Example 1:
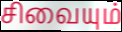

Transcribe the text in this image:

சிவையும்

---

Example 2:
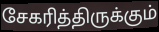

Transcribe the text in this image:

சேகரித்திருக்கும்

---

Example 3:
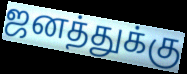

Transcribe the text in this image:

ஜனத்துக்கு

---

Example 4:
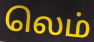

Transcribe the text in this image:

லெம்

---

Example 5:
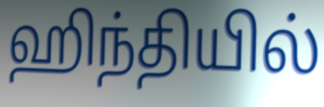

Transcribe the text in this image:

ஹிந்தியில்